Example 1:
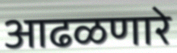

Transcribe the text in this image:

आढळणारे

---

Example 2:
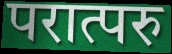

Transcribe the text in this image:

परात्परु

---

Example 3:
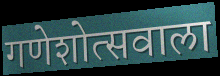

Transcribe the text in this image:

गणेशोत्सवाला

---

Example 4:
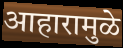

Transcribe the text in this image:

आहारामुळे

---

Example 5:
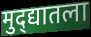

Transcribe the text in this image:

मुद्द्यातला